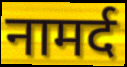
नामर्द